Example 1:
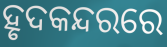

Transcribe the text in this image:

ହୃଦକନ୍ଦରରେ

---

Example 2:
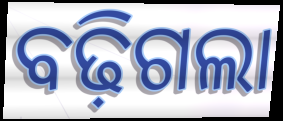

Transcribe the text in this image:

ବଢ଼ିଗଲା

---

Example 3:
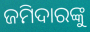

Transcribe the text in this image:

ଜମିଦାରଙ୍କୁ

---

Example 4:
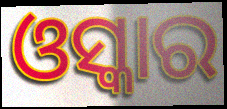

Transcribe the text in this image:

ଓସ୍କାର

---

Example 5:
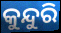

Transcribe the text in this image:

କୁନ୍ଦୁରି